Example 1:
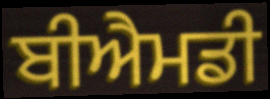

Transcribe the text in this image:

ਬੀਐਮਡੀ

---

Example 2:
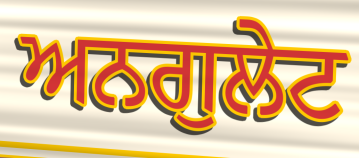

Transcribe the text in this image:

ਅਨਗੁਲੇਟ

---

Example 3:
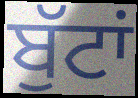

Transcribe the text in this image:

ਬੁੱਟਾਂ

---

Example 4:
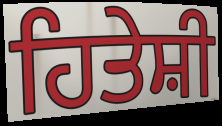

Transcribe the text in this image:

ਹਿਤੇਸ਼ੀ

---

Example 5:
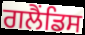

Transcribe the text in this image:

ਗਲੈਂਡਿਸ